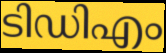
ടിഡിഎം